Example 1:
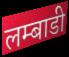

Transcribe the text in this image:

लम्बाडी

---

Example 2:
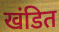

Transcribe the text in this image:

खंडित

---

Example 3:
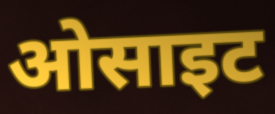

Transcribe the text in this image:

ओसाइट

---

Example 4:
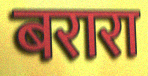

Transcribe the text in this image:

बरारा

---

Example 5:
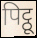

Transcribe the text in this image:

पिट्ठू